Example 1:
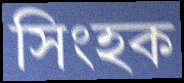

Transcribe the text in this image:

সিংহক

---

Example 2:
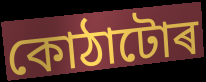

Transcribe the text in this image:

কোঠাটোৰ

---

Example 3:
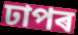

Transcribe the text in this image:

ঢাপৰ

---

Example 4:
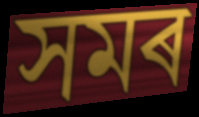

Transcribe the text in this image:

সমৰ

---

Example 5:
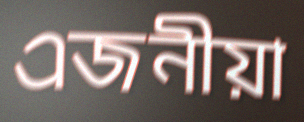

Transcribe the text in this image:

এজনীয়া